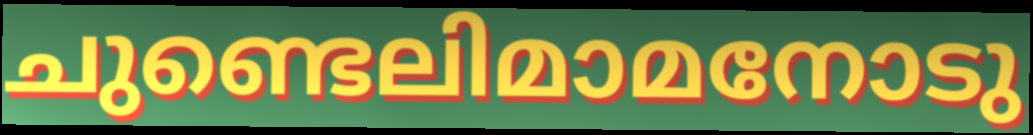
ചുണ്ടെലിമാമനോടു